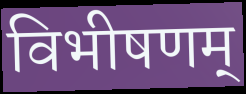
विभीषणम्